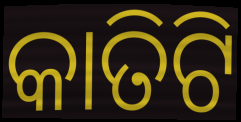
କାତିଟି